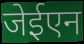
जेईएन